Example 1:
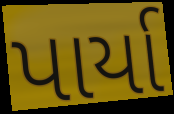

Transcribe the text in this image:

પાર્યા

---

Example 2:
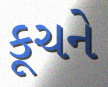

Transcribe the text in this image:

કૂચને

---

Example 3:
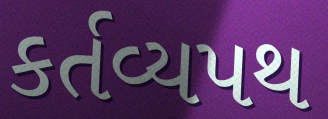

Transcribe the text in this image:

કર્તવ્યપથ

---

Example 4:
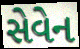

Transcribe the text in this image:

સેવેન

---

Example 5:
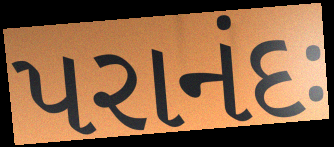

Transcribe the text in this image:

પરાનંદઃ